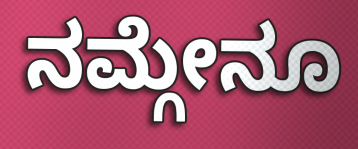
ನಮ್ಗೇನೂ